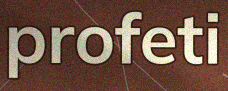
profeti